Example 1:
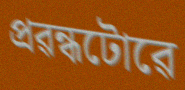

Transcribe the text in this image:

প্ৰৱন্ধটোৱে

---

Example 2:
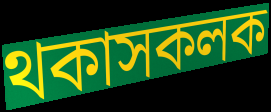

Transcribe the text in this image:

থকাসকলক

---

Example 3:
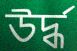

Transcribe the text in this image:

উৰ্দ্ধ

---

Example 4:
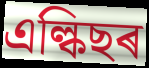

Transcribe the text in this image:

এল্কিছৰ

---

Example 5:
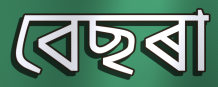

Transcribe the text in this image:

বেছৰা